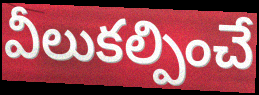
వీలుకల్పించే